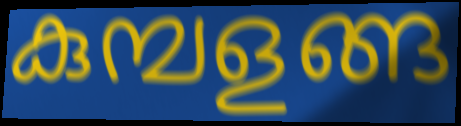
കുമ്പളങ്ങ